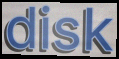
disk